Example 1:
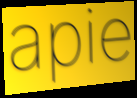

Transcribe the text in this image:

apie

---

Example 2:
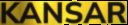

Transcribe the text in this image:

KANSAR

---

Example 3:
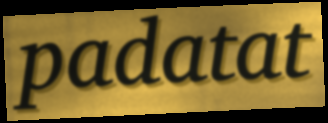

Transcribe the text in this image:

padatat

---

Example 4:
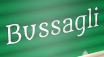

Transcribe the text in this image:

Bussagli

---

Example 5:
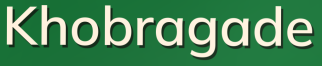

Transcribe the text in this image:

Khobragade